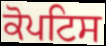
ਕੋਪਟਿਸ